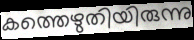
കത്തെഴുതിയിരുന്നു